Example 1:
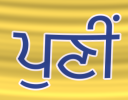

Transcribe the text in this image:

ਪੁਣੀਂ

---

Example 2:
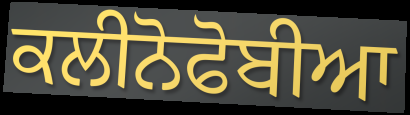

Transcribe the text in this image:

ਕਲੀਨੋਫੋਬੀਆ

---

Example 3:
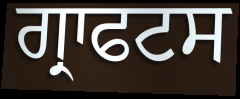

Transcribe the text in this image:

ਗ੍ਰਾਫਟਸ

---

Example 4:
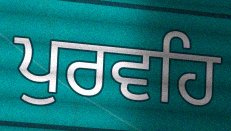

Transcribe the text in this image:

ਪੁਰਵਹਿ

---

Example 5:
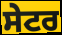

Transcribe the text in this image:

ਸੇਟਰ